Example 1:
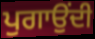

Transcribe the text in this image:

ਪੁਗਾਉਂਦੀ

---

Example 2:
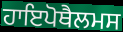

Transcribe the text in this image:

ਹਾਇਪੋਥੈਲਮਸ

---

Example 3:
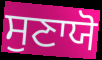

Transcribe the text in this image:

ਸੁਣਾਯੋ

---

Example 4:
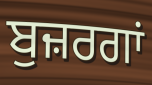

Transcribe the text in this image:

ਬੁਜ਼ਰਗਾਂ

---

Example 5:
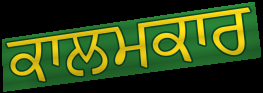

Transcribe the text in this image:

ਕਾਲਮਕਾਰ